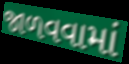
જાળવવામાં